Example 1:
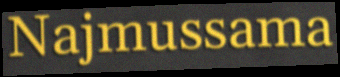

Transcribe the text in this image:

Najmussama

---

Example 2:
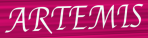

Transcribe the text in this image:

ARTEMIS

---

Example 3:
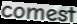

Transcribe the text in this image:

comest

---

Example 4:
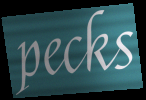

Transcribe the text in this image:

pecks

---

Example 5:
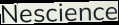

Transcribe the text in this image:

Nescience